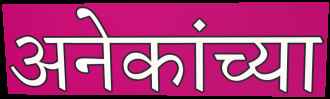
अनेकांच्या